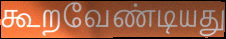
கூறவேண்டியது